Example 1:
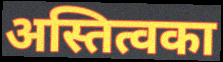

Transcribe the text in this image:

अस्तित्वका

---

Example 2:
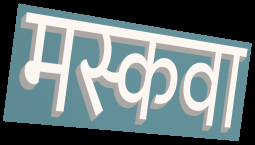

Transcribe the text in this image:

मस्कवा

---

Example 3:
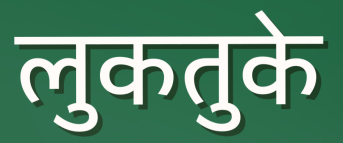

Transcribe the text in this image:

लुकतुके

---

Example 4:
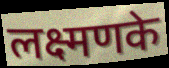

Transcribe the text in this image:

लक्ष्मणके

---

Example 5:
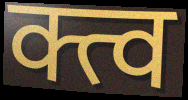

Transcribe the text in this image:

क्त्व